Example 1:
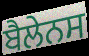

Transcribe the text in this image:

ਬੈਲੇਨਸ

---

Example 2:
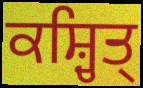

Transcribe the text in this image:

ਕਸ਼੍ਚਿਤ੍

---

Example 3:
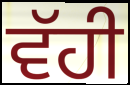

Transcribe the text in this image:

ਵੱਹੀ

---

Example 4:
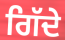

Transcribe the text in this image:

ਗਿੱਦੇ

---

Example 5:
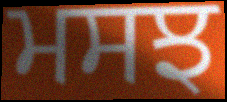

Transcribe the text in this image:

ਮਸਝ